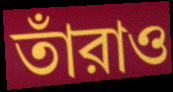
তাঁরাও